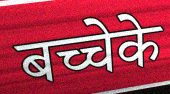
बच्चेके